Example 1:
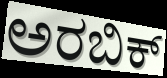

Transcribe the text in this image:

ಅರಬಿಕ್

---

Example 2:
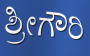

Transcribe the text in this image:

ಶ್ರೀಗೌರಿ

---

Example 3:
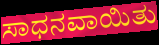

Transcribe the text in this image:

ಸಾಧನವಾಯಿತು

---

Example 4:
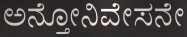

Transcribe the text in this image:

ಅನ್ತೋನಿವೇಸನೇ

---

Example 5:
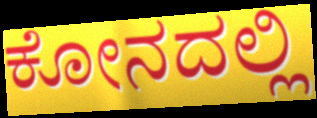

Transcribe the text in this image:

ಕೋನದಲ್ಲಿ